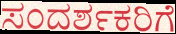
ಸಂದರ್ಶಕರಿಗೆ